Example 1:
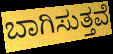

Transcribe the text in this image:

ಬಾಗಿಸುತ್ತವೆ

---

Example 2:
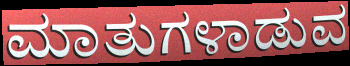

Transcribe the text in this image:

ಮಾತುಗಳಾಡುವ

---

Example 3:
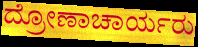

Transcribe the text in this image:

ದ್ರೋಣಾಚಾರ್ಯರು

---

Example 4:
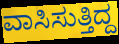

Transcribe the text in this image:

ವಾಸಿಸುತ್ತಿದ್ದ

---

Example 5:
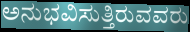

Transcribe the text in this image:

ಅನುಭವಿಸುತ್ತಿರುವವರು